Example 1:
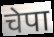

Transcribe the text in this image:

चेपा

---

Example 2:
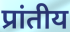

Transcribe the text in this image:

प्रांतीय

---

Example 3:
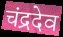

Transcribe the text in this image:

चंद्रदेव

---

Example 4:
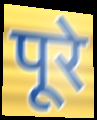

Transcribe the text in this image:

पूरे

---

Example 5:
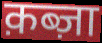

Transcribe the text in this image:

क़ब्ज़ा